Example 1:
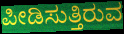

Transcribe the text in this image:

ಪೀಡಿಸುತ್ತಿರುವ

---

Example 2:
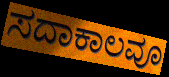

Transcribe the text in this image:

ಸದಾಕಾಲವೂ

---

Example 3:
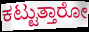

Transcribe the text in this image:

ಕಟ್ಟುತ್ತಾರೋ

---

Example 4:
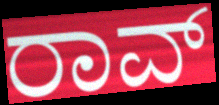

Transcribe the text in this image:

ರಾವ್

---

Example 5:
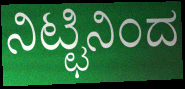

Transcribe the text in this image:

ನಿಟ್ಟಿನಿಂದ